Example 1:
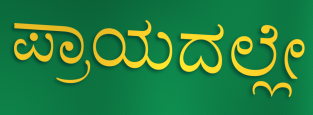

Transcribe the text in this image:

ಪ್ರಾಯದಲ್ಲೇ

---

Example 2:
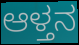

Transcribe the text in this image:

ಆಳ್ತನ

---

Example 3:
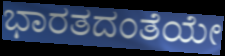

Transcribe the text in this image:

ಭಾರತದಂತೆಯೇ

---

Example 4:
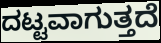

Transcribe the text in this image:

ದಟ್ಟವಾಗುತ್ತದೆ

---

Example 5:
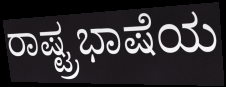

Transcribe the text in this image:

ರಾಷ್ಟ್ರಭಾಷೆಯ